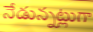
నేడున్నట్లుగా